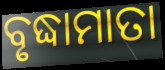
ବୃଦ୍ଧାମାତା